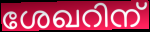
ശേഖറിന്